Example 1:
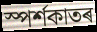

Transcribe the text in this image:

স্পৰ্শকাতৰ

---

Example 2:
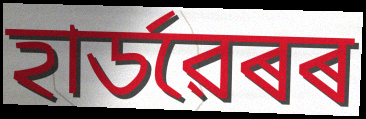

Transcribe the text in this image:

হাৰ্ডৱেৰৰ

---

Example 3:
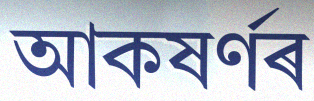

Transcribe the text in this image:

আকষৰ্ণৰ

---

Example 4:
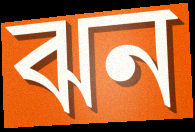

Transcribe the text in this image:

ঝন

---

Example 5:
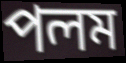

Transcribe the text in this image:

পলম